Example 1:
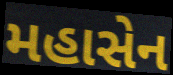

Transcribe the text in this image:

મહાસેન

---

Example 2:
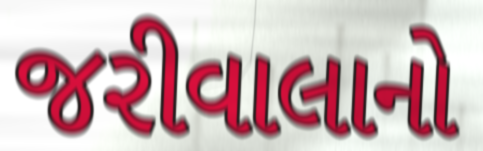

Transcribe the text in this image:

જરીવાલાનો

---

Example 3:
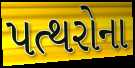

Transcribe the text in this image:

પત્થરોના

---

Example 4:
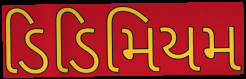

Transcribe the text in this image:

ડિડિમિયમ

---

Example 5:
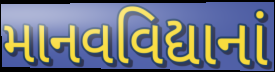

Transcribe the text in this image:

માનવવિદ્યાનાં